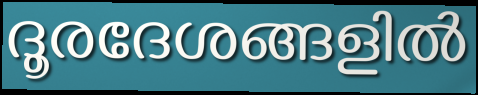
ദൂരദേശങ്ങളിൽ